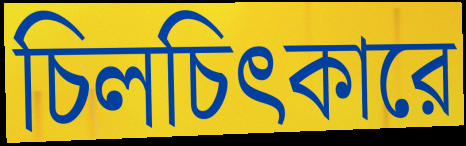
চিলচিৎকারে